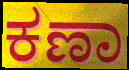
ಕಣಾ